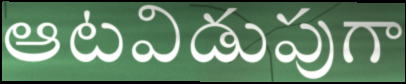
ఆటవిడుపుగా